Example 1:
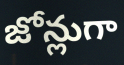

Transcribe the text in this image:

జోన్లుగా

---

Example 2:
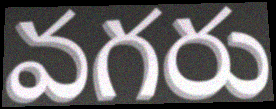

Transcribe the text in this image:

వగరు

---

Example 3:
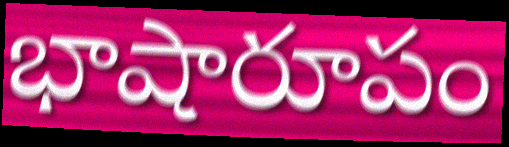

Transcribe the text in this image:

భాషారూపం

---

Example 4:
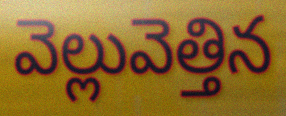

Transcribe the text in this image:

వెల్లువెత్తిన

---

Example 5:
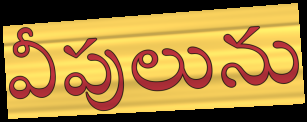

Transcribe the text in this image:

వీపులును